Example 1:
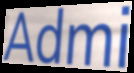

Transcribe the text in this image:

Admi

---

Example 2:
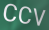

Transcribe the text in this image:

CCV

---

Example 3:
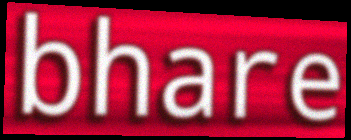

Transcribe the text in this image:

bhare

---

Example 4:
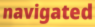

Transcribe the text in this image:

navigated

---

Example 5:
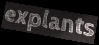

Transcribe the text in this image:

explants